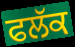
ਫਲੱਕ